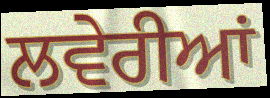
ਲਵੇਰੀਆਂ